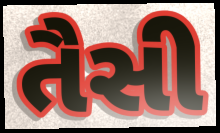
તૈસી